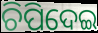
ଚିପିଦେଇ